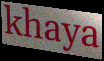
khaya